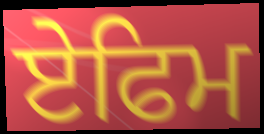
ਏਫਿਮ